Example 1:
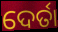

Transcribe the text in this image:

ଦେର୍ତା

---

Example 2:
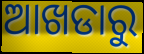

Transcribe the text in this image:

ଆଖଡାରୁ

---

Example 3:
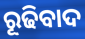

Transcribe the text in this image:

ରୂଢିବାଦ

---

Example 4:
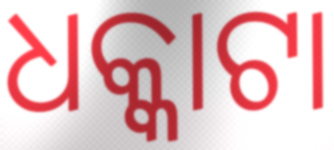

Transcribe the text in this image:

ଧକ୍କାଟା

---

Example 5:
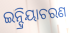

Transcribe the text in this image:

ଇନ୍ଦ୍ରିୟାଚରଣ